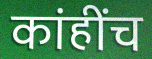
कांहींच